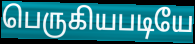
பெருகியபடியே